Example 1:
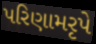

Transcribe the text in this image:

પરિણામરૃપે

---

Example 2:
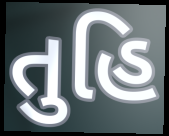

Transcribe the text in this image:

તુહિ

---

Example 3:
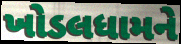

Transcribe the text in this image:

ખોડલધામને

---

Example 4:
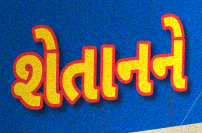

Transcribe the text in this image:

શેતાનને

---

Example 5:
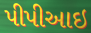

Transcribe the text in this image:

પીપીઆઇ